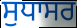
ਸੁਧਾਸਰ